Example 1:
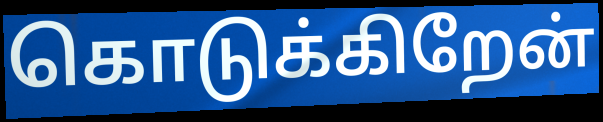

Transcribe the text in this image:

கொடுக்கிறேன்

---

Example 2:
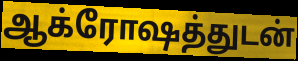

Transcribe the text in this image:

ஆக்ரோஷத்துடன்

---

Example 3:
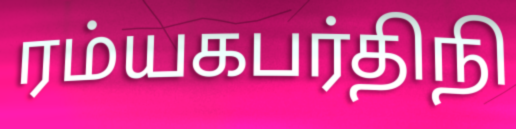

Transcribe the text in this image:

ரம்யகபர்திநி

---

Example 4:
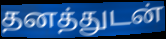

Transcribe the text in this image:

தனத்துடன்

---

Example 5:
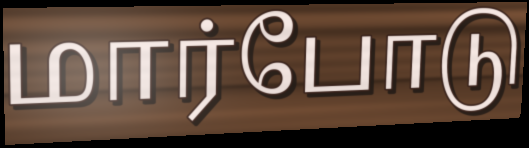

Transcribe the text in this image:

மார்போடு